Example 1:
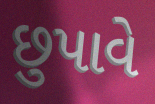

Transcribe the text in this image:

છુપાવે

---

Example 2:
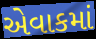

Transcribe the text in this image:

એવાકમાં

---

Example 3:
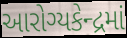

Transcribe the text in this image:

આરોગ્યકેન્દ્રમાં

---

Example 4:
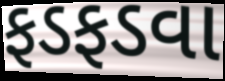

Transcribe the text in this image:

ફડફડવા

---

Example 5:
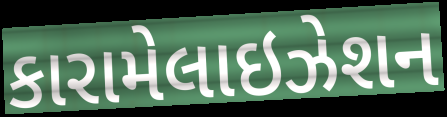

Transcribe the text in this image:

કારામેલાઇઝેશન